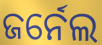
ଜର୍ନେଲ